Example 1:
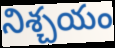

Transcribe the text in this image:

నిశ్చయం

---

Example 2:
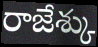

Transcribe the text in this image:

రాజేశ్కు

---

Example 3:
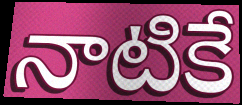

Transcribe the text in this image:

నాటికే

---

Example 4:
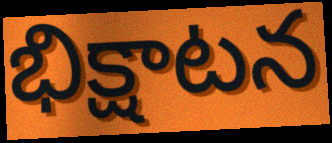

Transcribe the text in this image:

భిక్షాటన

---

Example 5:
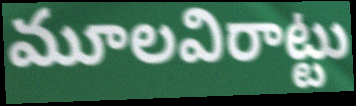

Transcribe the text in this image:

మూలవిరాట్టు